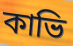
কাভি